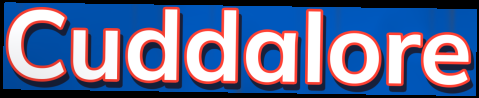
Cuddalore